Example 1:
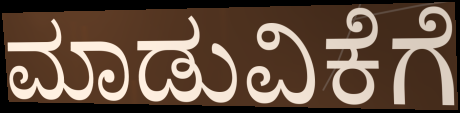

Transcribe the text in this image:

ಮಾಡುವಿಕೆಗೆ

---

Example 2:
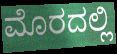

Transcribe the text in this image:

ಮೊರದಲ್ಲಿ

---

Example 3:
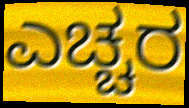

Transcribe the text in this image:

ಎಚ್ಚರ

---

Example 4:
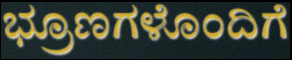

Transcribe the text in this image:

ಭ್ರೂಣಗಳೊಂದಿಗೆ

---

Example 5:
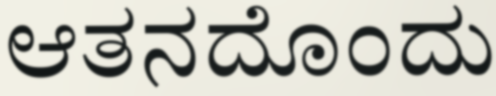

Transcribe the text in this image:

ಆತನದೊಂದು